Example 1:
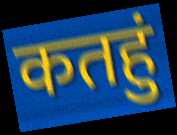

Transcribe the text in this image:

कतहुं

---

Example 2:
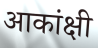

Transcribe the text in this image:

आकांक्षी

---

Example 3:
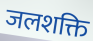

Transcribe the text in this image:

जलशक्ति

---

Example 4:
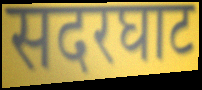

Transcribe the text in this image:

सदरघाट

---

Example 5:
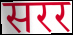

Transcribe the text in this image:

सरर